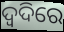
ଦ୍ଵଦିରେ